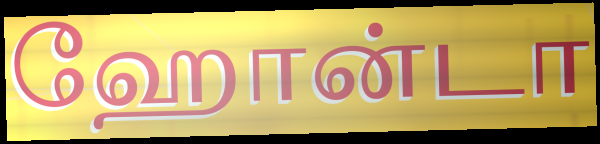
ஹோன்டா